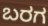
ಬರಗ